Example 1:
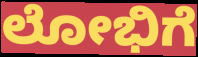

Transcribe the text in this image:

ಲೋಭಿಗೆ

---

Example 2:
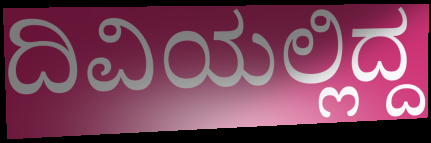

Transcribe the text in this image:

ದಿವಿಯಲ್ಲಿದ್ದ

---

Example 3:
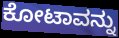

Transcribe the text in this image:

ಕೋಟಾವನ್ನು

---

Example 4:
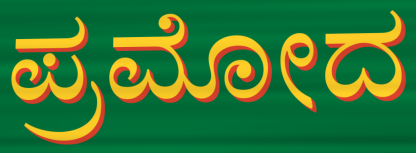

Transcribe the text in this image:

ಪ್ರಮೋದ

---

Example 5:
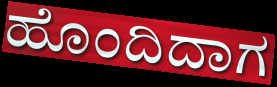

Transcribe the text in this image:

ಹೊಂದಿದಾಗ